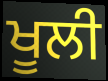
ਖੂਲੀ